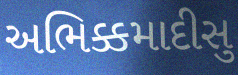
અભિક્કમાદીસુ